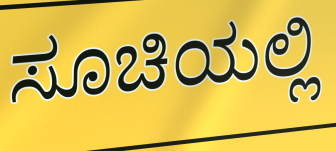
ಸೂಚಿಯಲ್ಲಿ